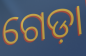
ଗେଡ଼ା